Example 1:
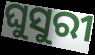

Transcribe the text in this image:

ଘୁସୁରୀ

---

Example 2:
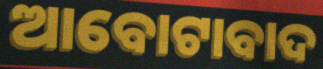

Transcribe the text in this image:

ଆବୋଟାବାଦ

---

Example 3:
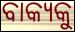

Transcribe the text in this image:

ବାକ୍ୟକୁ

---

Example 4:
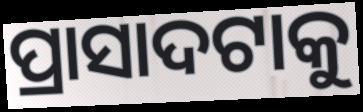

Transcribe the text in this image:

ପ୍ରାସାଦଟାକୁ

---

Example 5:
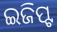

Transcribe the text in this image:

ଇଜିପ୍ଟ